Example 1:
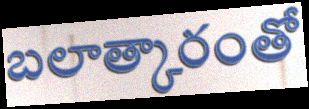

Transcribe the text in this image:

బలాత్కారంతో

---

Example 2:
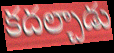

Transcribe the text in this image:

కదల్చాడు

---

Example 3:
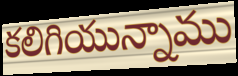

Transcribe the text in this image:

కలిగియున్నాము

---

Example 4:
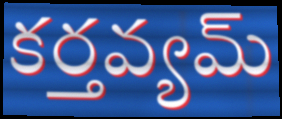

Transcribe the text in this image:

కర్తవ్యమ్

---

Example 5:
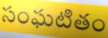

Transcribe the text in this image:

సంఘటితం